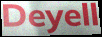
Deyell